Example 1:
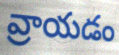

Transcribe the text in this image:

వ్రాయడం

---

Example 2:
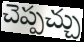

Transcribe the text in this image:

చెప్పచ్చు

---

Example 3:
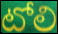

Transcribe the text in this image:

టోలి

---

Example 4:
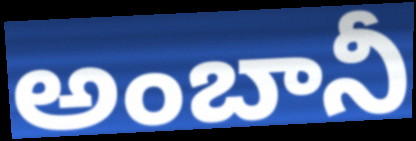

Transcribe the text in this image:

అంబానీ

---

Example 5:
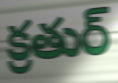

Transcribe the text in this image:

క్రతుర్